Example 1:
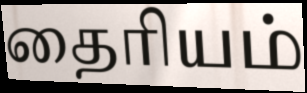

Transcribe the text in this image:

தைரியம்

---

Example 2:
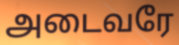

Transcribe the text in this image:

அடைவரே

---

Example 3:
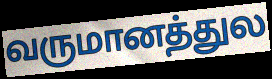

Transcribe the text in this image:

வருமானத்துல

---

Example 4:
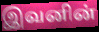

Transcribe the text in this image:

இவனின்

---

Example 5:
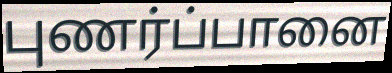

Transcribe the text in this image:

புணர்ப்பானை